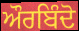
ਔਰਬਿੰਦੋ